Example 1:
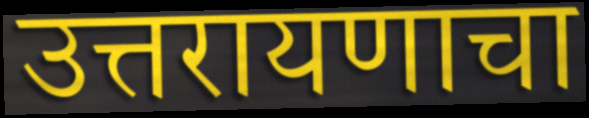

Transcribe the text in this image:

उत्तरायणाचा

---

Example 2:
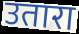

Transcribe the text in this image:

उतारा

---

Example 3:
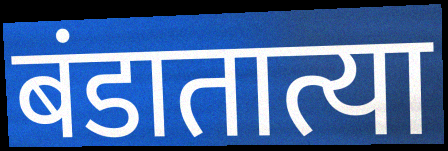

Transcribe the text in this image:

बंडातात्या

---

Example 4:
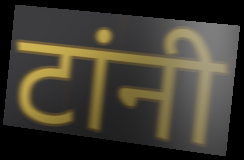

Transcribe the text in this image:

टांनी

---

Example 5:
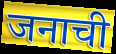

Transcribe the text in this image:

जनाची